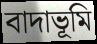
বাদাভূমি